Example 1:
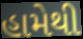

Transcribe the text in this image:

હામેથી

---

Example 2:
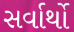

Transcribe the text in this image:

સર્વાર્થો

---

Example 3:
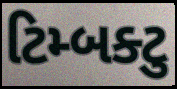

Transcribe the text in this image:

ટિમ્બક્ટુ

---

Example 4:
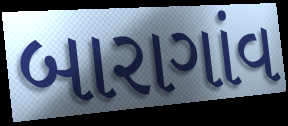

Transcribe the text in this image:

બારાગાંવ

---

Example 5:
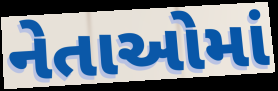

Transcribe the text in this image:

નેતાઓમાં